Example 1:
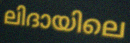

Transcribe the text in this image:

ലിദായിലെ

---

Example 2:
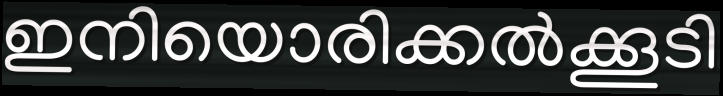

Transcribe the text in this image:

ഇനിയൊരിക്കൽക്കൂടി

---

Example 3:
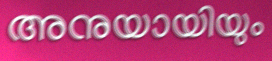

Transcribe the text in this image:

അനുയായിയും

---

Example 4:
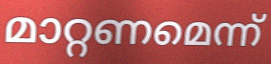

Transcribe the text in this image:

മാറ്റണമെന്ന്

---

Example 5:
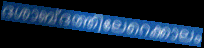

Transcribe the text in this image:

ദശാബ്ദത്തിലേറെക്കാലം